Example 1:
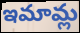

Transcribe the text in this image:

ఇమామ్ల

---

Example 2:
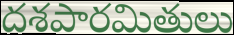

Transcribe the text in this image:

దశపారమితులు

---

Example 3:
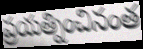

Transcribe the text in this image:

ప్రయత్నించినంత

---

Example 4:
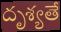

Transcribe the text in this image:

దృశ్యతే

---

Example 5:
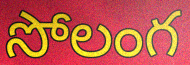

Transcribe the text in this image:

సోలంగ